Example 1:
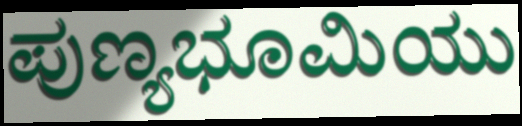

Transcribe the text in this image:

ಪುಣ್ಯಭೂಮಿಯು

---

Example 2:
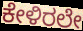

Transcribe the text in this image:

ಕೇಳಿರಲೇ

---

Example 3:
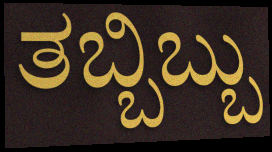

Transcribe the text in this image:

ತಬ್ಬಿಬ್ಬು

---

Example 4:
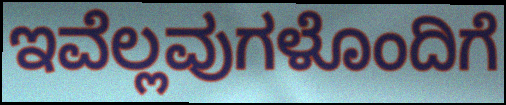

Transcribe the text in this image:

ಇವೆಲ್ಲವುಗಳೊಂದಿಗೆ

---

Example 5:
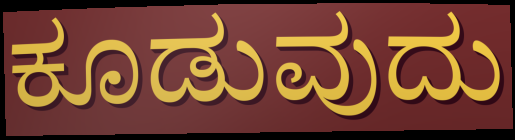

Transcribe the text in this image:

ಕೂಡುವುದು